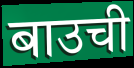
बाउची